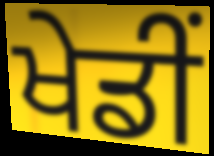
ਖੇਡੀਂ